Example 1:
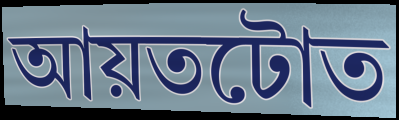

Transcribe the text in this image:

আয়তটোত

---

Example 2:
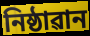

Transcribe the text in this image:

নিষ্ঠাৱান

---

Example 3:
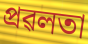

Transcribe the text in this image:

প্ৰৱলতা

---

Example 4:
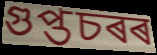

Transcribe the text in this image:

গুপ্তচৰৰ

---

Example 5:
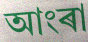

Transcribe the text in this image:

আংৰা